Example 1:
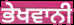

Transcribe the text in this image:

ਭੇਖਵਾਨੀ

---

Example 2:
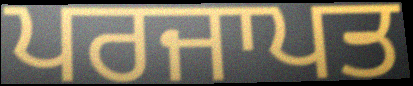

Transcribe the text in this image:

ਪਰਜਾਪਤ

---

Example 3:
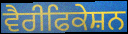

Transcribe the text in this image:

ਵੈਰੀਫਿਕੇਸ਼ਨ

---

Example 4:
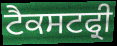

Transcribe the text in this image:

ਟੈਕਸਟਫ੍ਰੀ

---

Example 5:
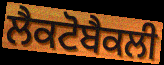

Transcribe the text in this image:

ਲੈਕਟੋਬੈਕਲੀ